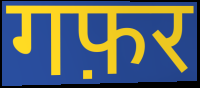
गफ़र